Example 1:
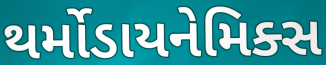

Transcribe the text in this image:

થર્મોડાયનેમિક્સ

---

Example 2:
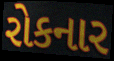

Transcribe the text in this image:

રોકનાર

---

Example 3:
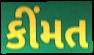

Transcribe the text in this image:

કીંમત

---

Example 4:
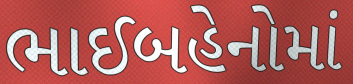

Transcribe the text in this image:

ભાઈબહેનોમાં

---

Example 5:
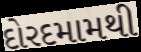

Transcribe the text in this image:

દોરદમામથી